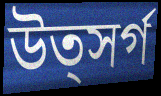
উত্সর্গ